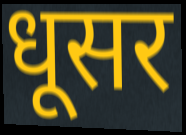
धूसर